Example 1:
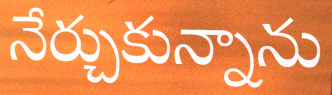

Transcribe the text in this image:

నేర్చుకున్నాను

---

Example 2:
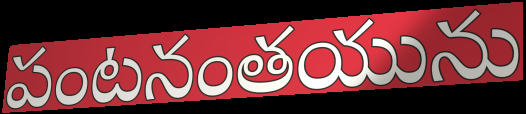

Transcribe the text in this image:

పంటనంతయును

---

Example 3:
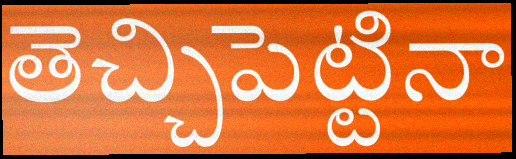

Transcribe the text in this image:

తెచ్చిపెట్టినా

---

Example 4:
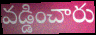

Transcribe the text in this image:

వడ్డించారు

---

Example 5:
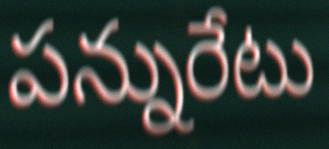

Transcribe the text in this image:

పన్నురేటు